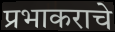
प्रभाकराचे